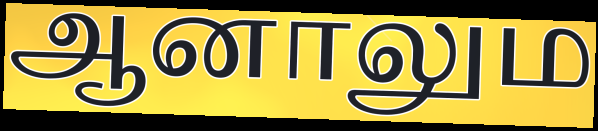
ஆனாலும